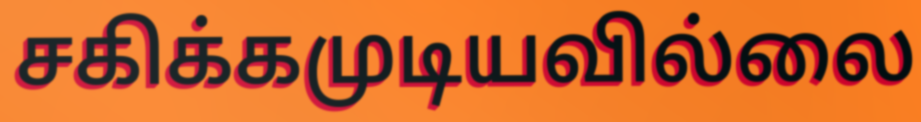
சகிக்கமுடியவில்லை